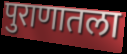
पुराणातला